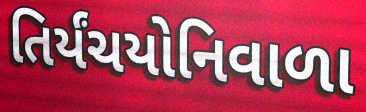
તિર્યંચયોનિવાળા